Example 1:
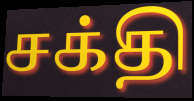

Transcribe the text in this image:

சக்தி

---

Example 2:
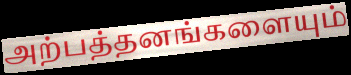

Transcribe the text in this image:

அற்பத்தனங்களையும்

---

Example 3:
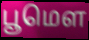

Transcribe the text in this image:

பூமௌ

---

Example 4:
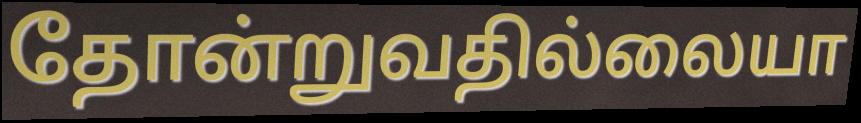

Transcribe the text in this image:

தோன்றுவதில்லையா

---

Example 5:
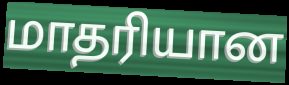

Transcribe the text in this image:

மாதரியான